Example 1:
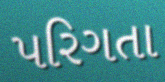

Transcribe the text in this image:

પરિગતા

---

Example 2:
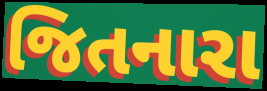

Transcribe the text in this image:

જિતનારા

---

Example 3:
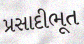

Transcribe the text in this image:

પ્રસાદીભૂત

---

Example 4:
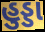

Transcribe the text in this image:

હુડ્ડા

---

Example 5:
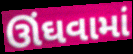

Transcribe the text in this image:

ઊંઘવામાં